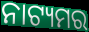
ନାଟ୍ୟମର